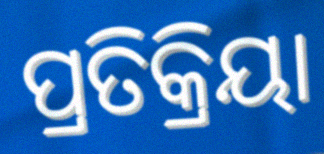
ପ୍ରତିକ୍ରିୟା